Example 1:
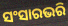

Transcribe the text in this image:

ସଂସାରଭରି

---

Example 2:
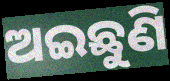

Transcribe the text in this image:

ଅଇଛୁଣି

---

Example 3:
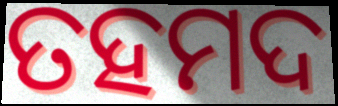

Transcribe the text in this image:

ତହମଦ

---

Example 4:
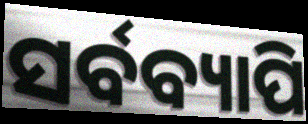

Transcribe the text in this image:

ସର୍ବବ୍ୟାପି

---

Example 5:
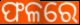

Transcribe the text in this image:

ଫଳରେ